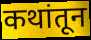
कथांतून